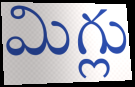
మిగ్లు